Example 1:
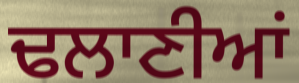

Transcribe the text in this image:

ਢਲਾਣੀਆਂ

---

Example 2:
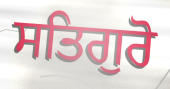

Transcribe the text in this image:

ਸਤਿਗੁਰੋ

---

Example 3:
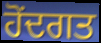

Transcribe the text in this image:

ਹੋਂਦਗਤ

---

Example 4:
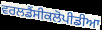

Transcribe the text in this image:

ਵਰਲਡੈਂਸੀਕਲੋਪੀਡੀਆ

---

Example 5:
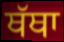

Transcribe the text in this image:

ਥੱਥਾ